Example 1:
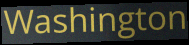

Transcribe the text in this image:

Washington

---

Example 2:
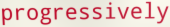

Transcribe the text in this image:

progressively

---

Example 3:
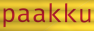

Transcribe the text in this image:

paakku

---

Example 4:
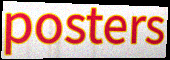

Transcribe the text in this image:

posters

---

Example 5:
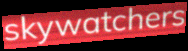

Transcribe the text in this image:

skywatchers